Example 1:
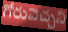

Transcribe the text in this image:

గోరువెచ్చని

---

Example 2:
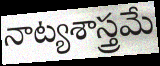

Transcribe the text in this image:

నాట్యశాస్త్రమే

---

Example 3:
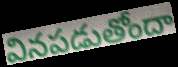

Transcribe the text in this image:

వినపడుతోందా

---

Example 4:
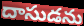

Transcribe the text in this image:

దాసుడను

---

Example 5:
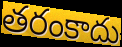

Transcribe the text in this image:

తరంకాదు